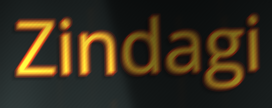
Zindagi